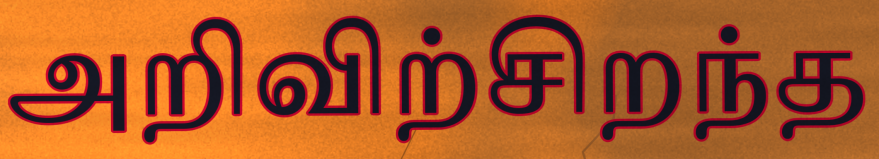
அறிவிற்சிறந்த